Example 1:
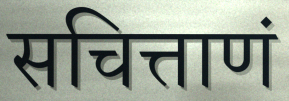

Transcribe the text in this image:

सचित्ताणं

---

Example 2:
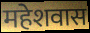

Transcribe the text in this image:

महेशवास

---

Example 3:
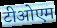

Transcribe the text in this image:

टीओएम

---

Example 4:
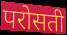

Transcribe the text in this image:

परोसती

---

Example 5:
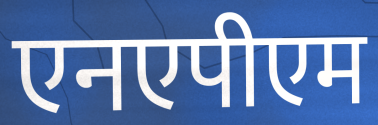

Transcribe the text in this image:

एनएपीएम